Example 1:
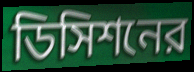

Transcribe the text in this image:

ডিসিশনের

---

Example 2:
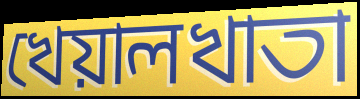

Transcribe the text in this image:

খেয়ালখাতা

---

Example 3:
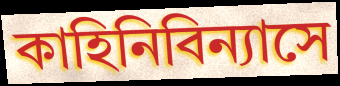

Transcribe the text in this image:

কাহিনিবিন্যাসে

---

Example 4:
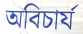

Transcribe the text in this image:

অবিচার্য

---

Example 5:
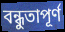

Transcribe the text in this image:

বন্ধুতাপূর্ণ